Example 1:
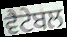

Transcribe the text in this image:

ਵੈਟੇਬਲ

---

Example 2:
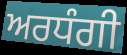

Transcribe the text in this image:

ਅਰਧੰਗੀ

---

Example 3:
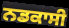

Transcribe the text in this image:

ਨਡਕਾਸੀ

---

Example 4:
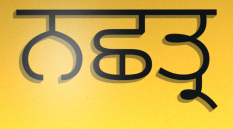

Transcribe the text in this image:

ਨਛਤ੍ਰ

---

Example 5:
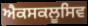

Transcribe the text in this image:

ਐਕਸਕਲੂਸਿਵ